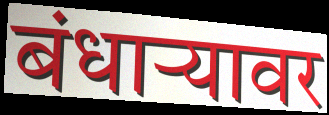
बंधाऱ्यावर